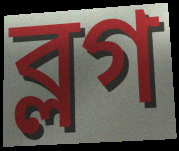
ব্লগ